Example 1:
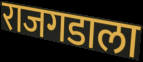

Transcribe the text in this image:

राजगडाला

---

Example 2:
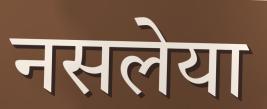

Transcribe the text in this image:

नसलेया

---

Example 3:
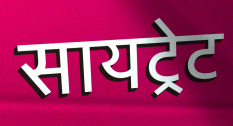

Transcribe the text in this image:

सायट्रेट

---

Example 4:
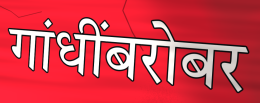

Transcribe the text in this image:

गांधींबरोबर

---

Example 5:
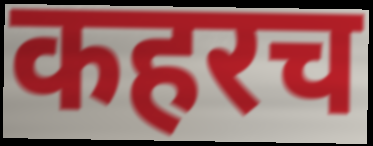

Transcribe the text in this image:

कहरच